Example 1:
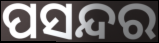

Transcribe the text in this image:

ପସନ୍ଦର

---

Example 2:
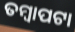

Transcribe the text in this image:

ତମ୍ବାପଟା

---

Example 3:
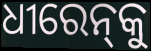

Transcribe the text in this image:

ଧୀରେନ୍‌କୁ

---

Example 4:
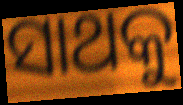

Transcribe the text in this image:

ସାଥକୁ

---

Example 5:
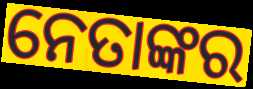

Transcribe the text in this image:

ନେତାଙ୍କର